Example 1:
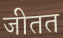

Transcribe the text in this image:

जीतत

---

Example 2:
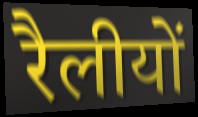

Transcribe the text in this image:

रैलीयों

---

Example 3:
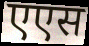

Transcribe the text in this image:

एएस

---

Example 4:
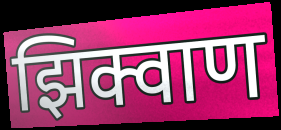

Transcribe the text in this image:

झिक्वाण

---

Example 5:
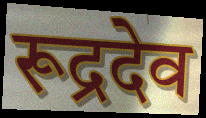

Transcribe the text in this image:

रूद्रदेव